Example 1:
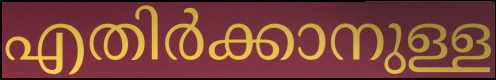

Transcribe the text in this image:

എതിർക്കാനുള്ള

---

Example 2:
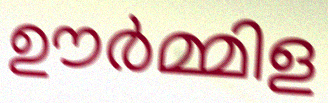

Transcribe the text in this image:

ഊർമ്മിള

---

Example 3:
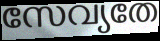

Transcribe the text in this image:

സേവ്യതേ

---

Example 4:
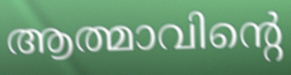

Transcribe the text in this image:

ആത്മാവിന്റെ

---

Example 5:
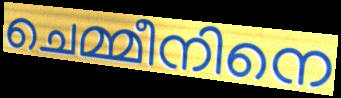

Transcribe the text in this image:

ചെമ്മീനിനെ